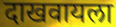
दाखवायला